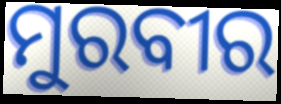
ମୁରବୀର